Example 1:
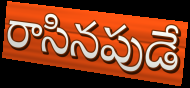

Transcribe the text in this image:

రాసినపుడే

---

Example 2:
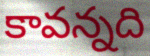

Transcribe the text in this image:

కావన్నది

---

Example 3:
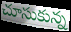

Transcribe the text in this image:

చూసుకున్న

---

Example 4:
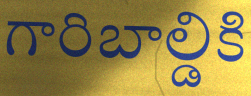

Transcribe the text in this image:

గారిబాల్డికి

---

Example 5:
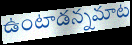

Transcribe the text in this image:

ఉంటాడన్నమాట